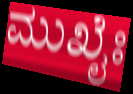
ಮುಖೈಃ